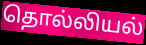
தொல்லியல்